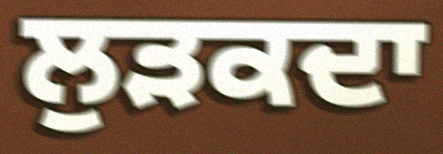
ਲੁੜਕਦਾ